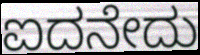
ಐದನೇದು